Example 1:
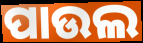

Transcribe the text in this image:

ପାଉଲ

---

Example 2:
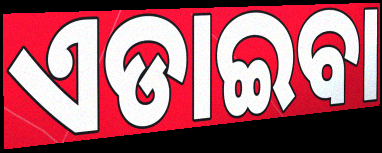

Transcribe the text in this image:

ଏଡାଇବା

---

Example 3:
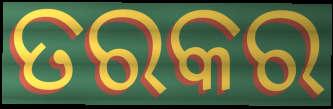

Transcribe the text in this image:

ତରକର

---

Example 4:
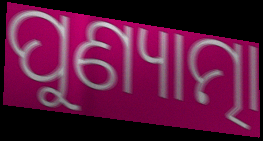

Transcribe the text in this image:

ପୁଣ୍ୟାତ୍ମା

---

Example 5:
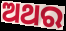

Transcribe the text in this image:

ଅଥର